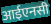
आईएनसी